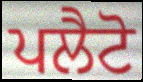
ਪਲੈਟੋ